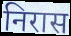
निरास